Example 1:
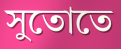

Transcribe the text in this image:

সুতোতে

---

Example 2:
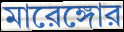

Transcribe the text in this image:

মারেঙ্গোর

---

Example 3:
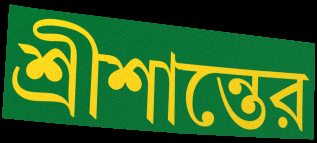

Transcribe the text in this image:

শ্রীশান্তের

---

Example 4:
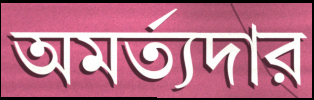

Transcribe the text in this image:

অমর্ত্যদার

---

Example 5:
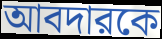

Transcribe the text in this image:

আবদারকে